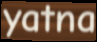
yatna